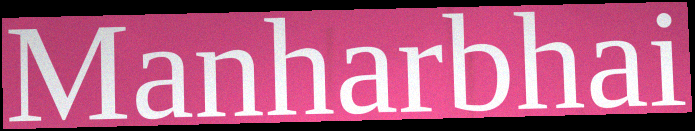
Manharbhai